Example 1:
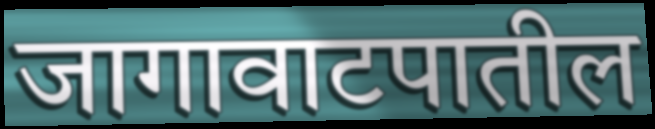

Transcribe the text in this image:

जागावाटपातील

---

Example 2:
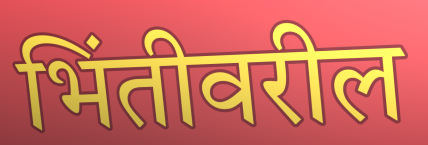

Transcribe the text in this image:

भिंतीवरील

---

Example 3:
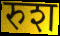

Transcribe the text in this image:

रुश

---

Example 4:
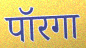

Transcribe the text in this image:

पॉरगा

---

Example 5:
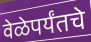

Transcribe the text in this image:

वेळेपर्यंतचे